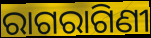
ରାଗରାଗିଣୀ